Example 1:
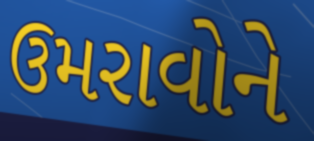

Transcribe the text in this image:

ઉમરાવોને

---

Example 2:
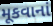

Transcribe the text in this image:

મૂકવાનાં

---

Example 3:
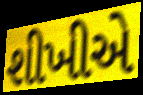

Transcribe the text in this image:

શીખીએ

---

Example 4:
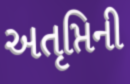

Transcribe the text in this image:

અતૃપ્તિની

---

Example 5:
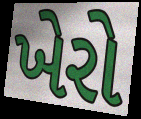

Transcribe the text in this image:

ખેરો